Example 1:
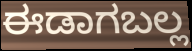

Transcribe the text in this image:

ಈಡಾಗಬಲ್ಲ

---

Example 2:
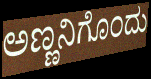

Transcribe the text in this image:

ಅಣ್ಣನಿಗೊಂದು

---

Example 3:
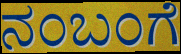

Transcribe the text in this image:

ನಂಬಂಗೆ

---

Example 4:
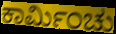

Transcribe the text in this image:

ಕಾರ್ಮಿಂಚು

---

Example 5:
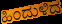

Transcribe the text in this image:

ಹಿಂದುಳಿದ